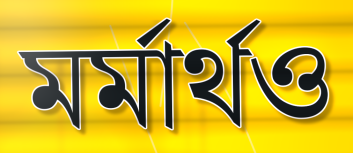
মর্মার্থও